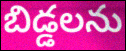
బిడ్డలను